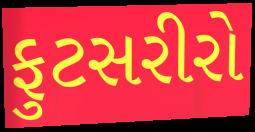
ફુટસરીરો